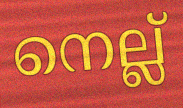
നെല്ല്